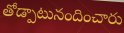
తోడ్పాటునందించారు